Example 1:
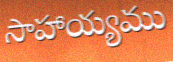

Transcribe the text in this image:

సాహాయ్యము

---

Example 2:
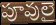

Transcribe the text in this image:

పూవులై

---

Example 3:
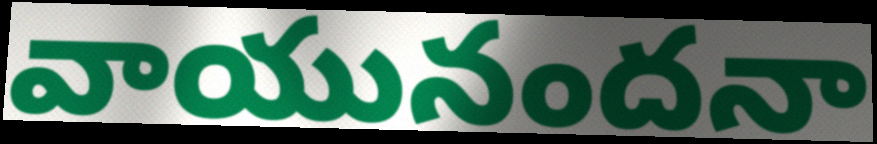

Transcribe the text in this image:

వాయునందనా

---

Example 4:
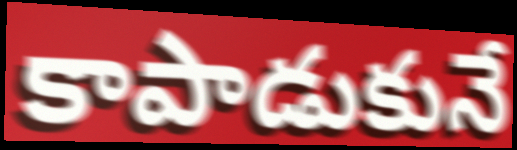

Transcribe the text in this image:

కాపాడుకునే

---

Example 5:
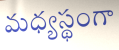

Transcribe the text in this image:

మధ్యస్థంగా